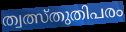
ത്വത്സ്തുതിപരം